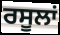
ਰਸੂਲਾਂ